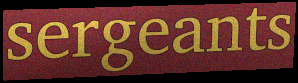
sergeants